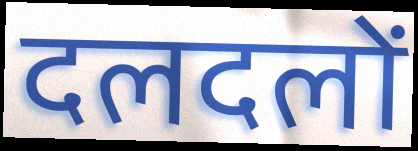
दलदलों